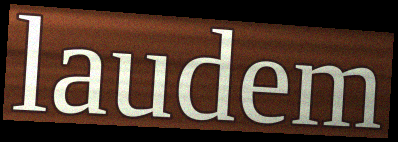
laudem